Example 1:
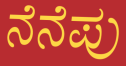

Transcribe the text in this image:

ನೆನೆಪು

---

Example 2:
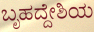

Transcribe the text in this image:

ಬೃಹದ್ದೇಶಿಯ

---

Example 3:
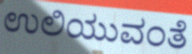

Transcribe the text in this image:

ಉಲಿಯುವಂತೆ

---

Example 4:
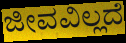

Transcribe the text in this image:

ಜೀವವಿಲ್ಲದೆ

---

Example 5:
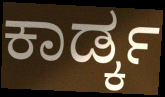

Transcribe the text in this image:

ಕಾರ್ಡ್ಕ